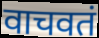
वाचवतं